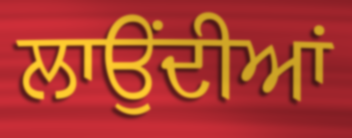
ਲਾਉੰਦੀਆਂ